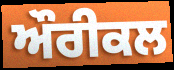
ਔਰੀਕਲ